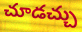
చూడచ్చు